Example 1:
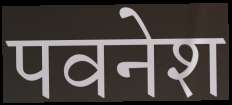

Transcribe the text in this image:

पवनेश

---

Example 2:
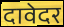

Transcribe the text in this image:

दावेदर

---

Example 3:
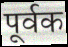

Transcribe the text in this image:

पूर्वक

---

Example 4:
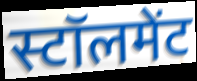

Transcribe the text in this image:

स्टॉलमेंट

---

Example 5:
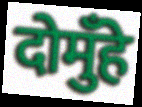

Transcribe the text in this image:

दोमुँहे